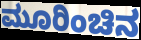
ಮೂರಿಂಚಿನ